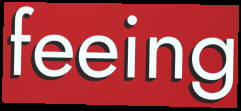
feeing